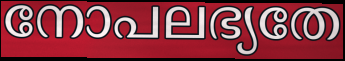
നോപലഭ്യതേ